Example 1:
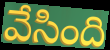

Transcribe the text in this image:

వేసింది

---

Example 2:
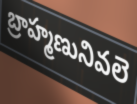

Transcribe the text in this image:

బ్రాహ్మణునివలె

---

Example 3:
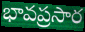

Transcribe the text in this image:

భావప్రసార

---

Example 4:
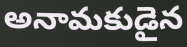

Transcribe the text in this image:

అనామకుడైన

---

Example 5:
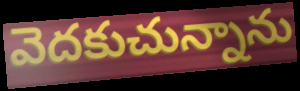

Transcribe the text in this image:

వెదకుచున్నాను